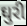
ઘુરી